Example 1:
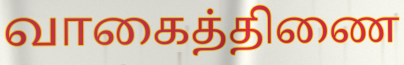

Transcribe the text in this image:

வாகைத்திணை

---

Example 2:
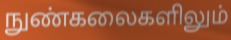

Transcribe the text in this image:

நுண்கலைகளிலும்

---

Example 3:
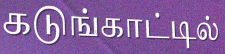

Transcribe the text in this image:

கடுங்காட்டில்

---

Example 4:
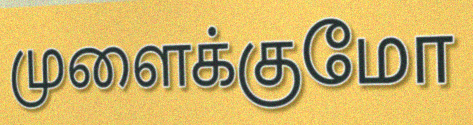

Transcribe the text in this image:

முளைக்குமோ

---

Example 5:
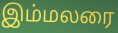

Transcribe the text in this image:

இம்மலரை